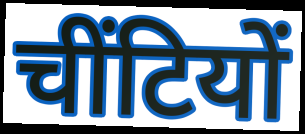
चींटियों